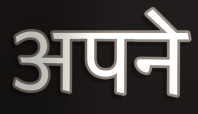
अपने